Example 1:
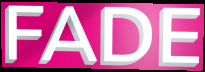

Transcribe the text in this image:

FADE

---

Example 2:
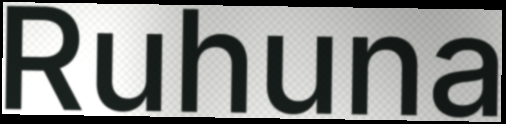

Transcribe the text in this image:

Ruhuna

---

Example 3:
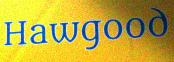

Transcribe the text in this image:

Hawgood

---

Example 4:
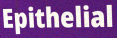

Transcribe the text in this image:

Epithelial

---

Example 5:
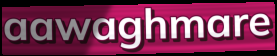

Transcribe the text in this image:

aawaghmare